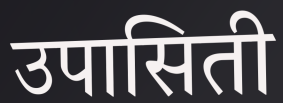
उपासिती